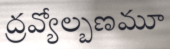
ద్రవ్యోల్బణమూ